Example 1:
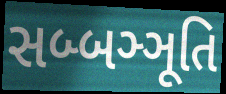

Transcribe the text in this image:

સબ્બઞ્ઞૂતિ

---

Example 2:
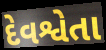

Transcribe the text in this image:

દેવશ્વેતા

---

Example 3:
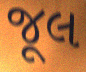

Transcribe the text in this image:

જૂલ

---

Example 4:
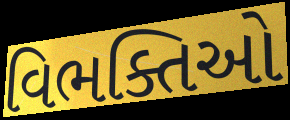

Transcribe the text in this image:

વિભક્તિઓ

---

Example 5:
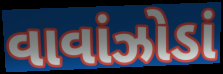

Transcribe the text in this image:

વાવાંઝોડાં